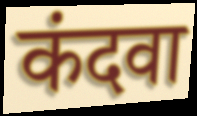
कंदवा